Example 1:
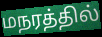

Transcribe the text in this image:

மநரத்தில்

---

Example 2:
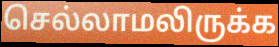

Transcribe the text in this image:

செல்லாமலிருக்க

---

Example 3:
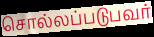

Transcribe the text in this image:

சொல்லப்படுபவர்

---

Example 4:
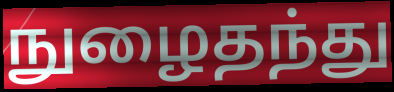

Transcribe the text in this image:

நுழைதந்து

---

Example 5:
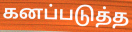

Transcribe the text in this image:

கனப்படுத்த